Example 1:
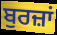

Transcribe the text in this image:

ਬੁਰਜ਼ਾਂ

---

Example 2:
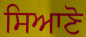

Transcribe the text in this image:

ਸਿਆਣੋ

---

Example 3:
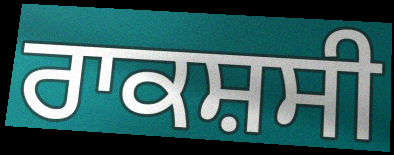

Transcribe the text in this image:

ਰਾਕਸ਼ਸੀ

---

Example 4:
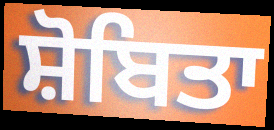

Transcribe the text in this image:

ਸ਼ੋਬਿਤਾ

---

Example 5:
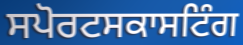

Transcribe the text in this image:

ਸਪੋਰਟਸਕਾਸਟਿੰਗ